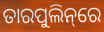
ତାରପୁଲିନ୍‌ରେ